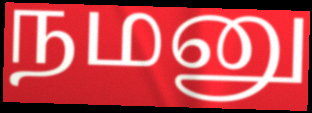
நமனு